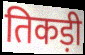
तिकड़ी